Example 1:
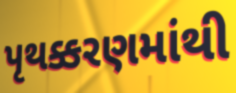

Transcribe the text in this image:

પૃથક્કરણમાંથી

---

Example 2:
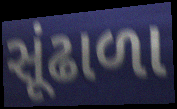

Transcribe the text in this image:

સૂંઢાળા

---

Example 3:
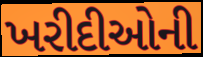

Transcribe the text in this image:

ખરીદીઓની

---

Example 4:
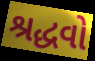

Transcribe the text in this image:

શ્રદ્ધવો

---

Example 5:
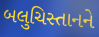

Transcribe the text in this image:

બલુચિસ્તાનને